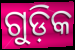
ଗୁଡ଼ିକ